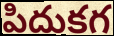
పిదుకగ